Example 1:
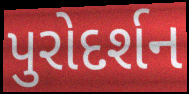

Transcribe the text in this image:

પુરોદર્શન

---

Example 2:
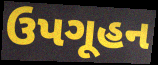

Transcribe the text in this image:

ઉપગૂહન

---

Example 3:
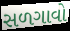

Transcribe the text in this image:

સળગાવો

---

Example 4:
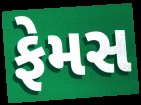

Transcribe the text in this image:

ફેમસ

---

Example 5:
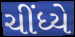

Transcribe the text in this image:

ચીંધ્યે